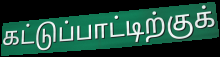
கட்டுப்பாட்டிற்குக்